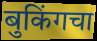
बुकिंगचा